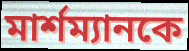
মার্শম্যানকে